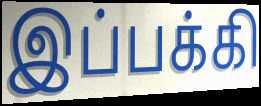
இப்பக்கி